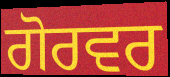
ਗੋਰਵਰ